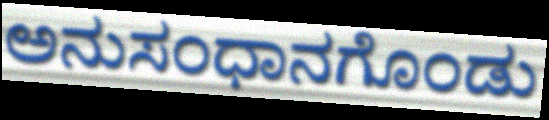
ಅನುಸಂಧಾನಗೊಂಡು